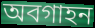
অবগাহন